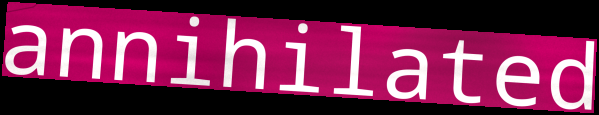
annihilated